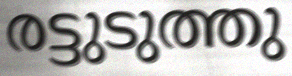
രട്ടുടുത്തു